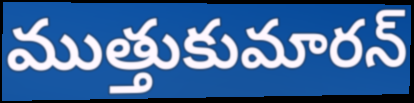
ముత్తుకుమారన్